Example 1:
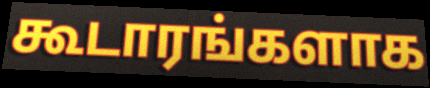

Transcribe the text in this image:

கூடாரங்களாக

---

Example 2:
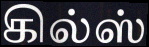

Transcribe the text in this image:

கில்ஸ்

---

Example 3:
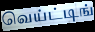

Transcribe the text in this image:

வெய்ட்டிங்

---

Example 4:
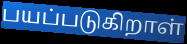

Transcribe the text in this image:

பயப்படுகிறாள்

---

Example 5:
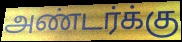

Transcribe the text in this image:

அண்டர்க்கு